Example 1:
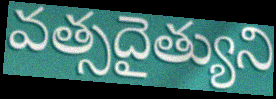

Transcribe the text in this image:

వత్సదైత్యుని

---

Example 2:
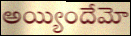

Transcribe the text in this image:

అయ్యిందేమో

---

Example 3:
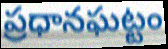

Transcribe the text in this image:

ప్రధానఘట్టం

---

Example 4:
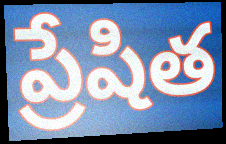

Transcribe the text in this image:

ప్రేషిత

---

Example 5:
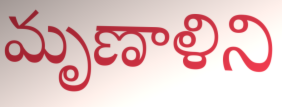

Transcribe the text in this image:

మృణాళిని